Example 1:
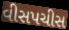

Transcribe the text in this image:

વીસપચીસ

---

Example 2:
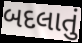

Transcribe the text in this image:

બદલાતું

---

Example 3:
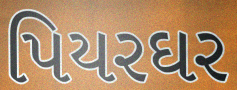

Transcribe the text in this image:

પિયરઘર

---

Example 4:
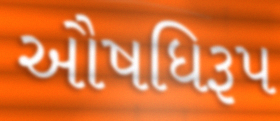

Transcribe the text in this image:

ઔષધિરૂપ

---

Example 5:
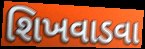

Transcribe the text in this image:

શિખવાડવા